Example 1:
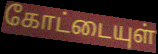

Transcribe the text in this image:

கோட்டையுள்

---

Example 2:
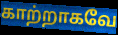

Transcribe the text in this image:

காற்றாகவே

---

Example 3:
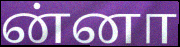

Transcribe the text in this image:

ன்னா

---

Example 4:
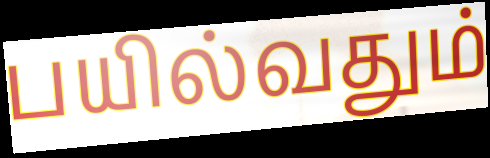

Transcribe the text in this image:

பயில்வதும்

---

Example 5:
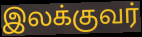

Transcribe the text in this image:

இலக்குவர்